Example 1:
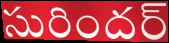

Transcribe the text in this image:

సురిందర్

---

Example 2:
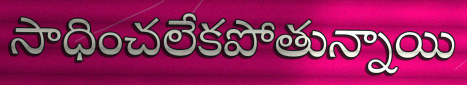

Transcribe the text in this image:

సాధించలేకపోతున్నాయి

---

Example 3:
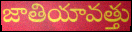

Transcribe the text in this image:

జాతియావత్తు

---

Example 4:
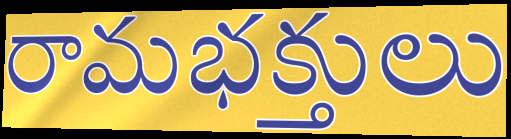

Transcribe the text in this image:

రామభక్తులు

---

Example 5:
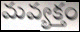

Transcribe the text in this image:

మవ్యక్తం